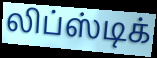
லிப்ஸ்டிக்